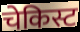
चेकिस्ट